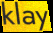
klay